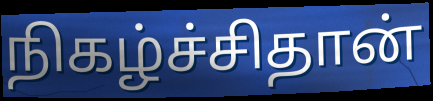
நிகழ்ச்சிதான்